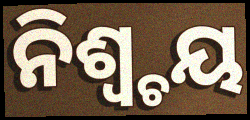
ନିଶ୍ୱ୍ଚୟ